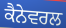
ਕੈਨੇਵਰਲ